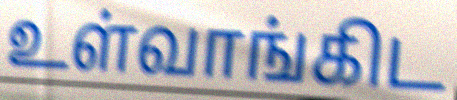
உள்வாங்கிட